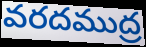
వరదముద్ర